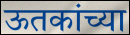
ऊतकांच्या